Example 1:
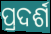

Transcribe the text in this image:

ପ୍ରଦର୍ଶ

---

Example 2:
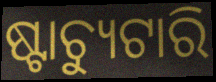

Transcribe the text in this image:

ଷ୍ଟାଚ୍ୟୁଟାରି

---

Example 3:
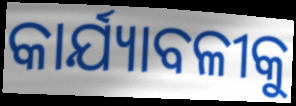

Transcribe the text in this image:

କାର୍ଯ୍ୟାବଳୀକୁ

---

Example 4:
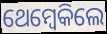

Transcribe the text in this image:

ଥେମ୍ବେକିଲେ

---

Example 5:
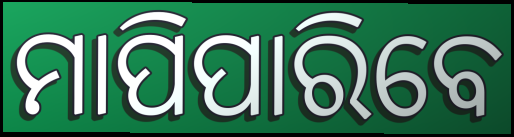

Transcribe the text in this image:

ମାପିପାରିବେ